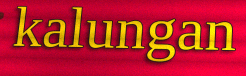
kalungan